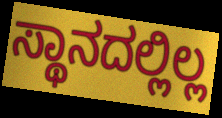
ಸ್ಥಾನದಲ್ಲಿಲ್ಲ